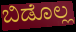
ಬಿಡೊಲ್ಲ